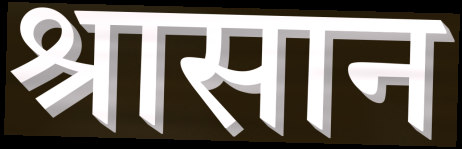
श्रासान